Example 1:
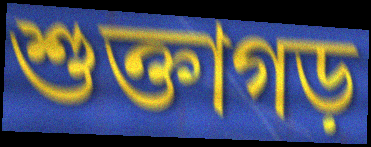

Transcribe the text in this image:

শুক্তাগড়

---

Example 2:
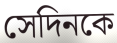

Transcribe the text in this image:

সেদিনকে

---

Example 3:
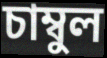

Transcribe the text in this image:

চাম্বুল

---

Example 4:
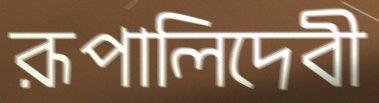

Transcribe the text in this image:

রূপালিদেবী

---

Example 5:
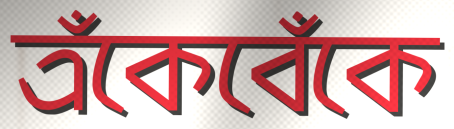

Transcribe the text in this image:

ত্রঁকেবেঁকে